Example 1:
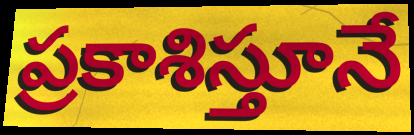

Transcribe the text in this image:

ప్రకాశిస్తూనే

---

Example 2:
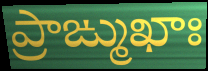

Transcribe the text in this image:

ప్రాఙ్ముఖాః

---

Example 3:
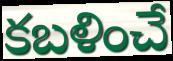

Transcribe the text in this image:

కబళించే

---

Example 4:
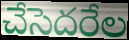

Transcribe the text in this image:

చేసెదరేల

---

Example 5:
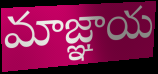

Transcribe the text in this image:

మాజ్ఞాయ